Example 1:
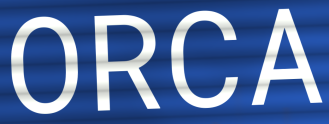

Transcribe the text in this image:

ORCA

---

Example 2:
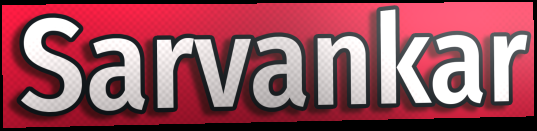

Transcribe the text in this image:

Sarvankar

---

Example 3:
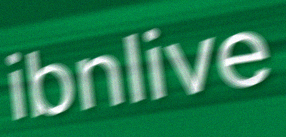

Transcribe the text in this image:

ibnlive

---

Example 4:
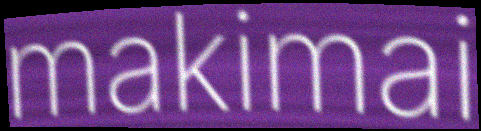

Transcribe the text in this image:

makimai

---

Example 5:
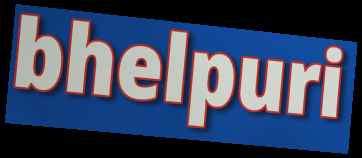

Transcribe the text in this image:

bhelpuri